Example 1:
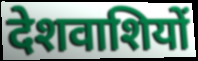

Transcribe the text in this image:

देशवाशियों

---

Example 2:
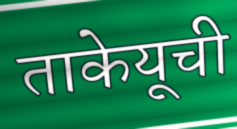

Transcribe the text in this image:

ताकेयूची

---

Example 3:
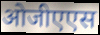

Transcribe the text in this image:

ओजीएएस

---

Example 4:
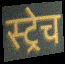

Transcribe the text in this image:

स्ट्रेच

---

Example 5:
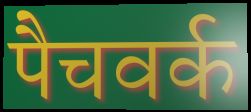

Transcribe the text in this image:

पैचवर्क